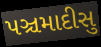
પઞ્ચમાદીસુ